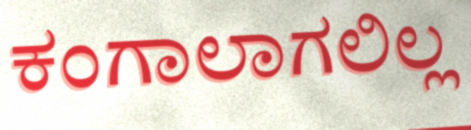
ಕಂಗಾಲಾಗಲಿಲ್ಲ